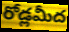
రోడ్లమీద